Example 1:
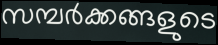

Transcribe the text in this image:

സമ്പർക്കങ്ങളുടെ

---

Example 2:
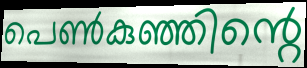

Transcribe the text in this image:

പെൺകുഞ്ഞിന്റെ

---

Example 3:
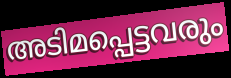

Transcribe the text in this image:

അടിമപ്പെട്ടവരും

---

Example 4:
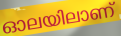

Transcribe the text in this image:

ഓലയിലാണ്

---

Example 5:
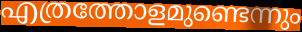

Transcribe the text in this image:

എത്രത്തോളമുണ്ടെന്നും